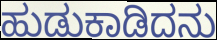
ಹುಡುಕಾಡಿದನು